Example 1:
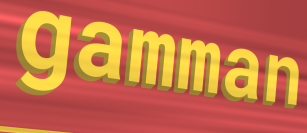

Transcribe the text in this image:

gamman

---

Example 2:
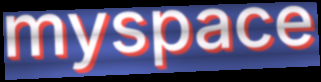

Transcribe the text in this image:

myspace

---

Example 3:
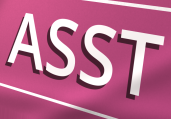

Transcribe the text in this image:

ASST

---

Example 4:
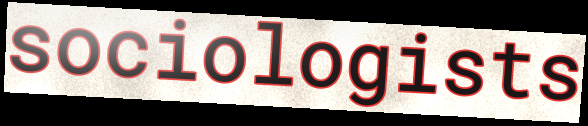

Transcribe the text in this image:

sociologists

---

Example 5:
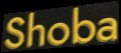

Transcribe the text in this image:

Shoba